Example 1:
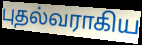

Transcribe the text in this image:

புதல்வராகிய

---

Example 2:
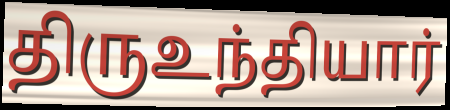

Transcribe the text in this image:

திருஉந்தியார்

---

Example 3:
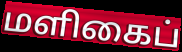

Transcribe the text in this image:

மளிகைப்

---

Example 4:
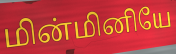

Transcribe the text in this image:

மின்மினியே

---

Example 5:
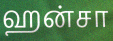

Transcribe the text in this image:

ஹன்சா